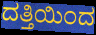
ದತ್ತಿಯಿಂದ